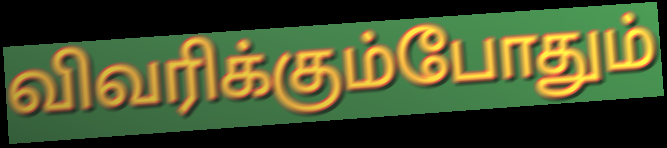
விவரிக்கும்போதும்